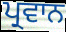
ਪ੍ਰਵਾਨ